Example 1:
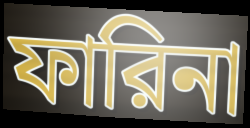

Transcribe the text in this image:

ফারিনা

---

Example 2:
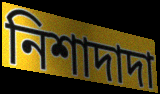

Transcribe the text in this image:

নিশাদাদা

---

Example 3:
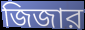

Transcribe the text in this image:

জিজার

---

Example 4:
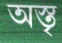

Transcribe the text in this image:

অস্তৃ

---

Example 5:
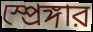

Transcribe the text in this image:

স্প্রেঙ্গার